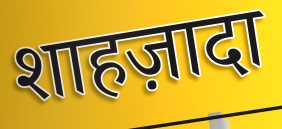
शाहज़ादा